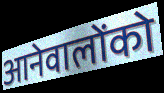
आनेवालोंको